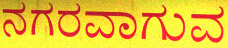
ನಗರವಾಗುವ